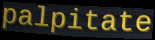
palpitate